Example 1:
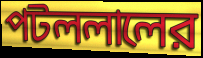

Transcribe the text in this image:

পটললালের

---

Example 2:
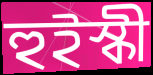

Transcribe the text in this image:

হুইস্কী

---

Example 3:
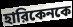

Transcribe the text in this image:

হারিকেনকে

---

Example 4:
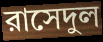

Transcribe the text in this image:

রাসেদুল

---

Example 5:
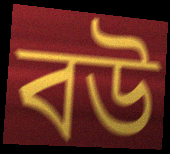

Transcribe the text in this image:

বউ